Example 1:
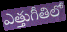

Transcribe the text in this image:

ఎత్తుగీతిలో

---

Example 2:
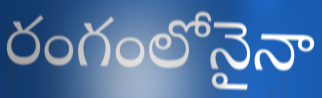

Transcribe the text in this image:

రంగంలోనైనా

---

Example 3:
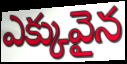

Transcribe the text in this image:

ఎక్కువైన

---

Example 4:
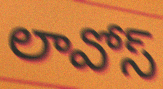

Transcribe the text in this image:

లావోస్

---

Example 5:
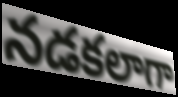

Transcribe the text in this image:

నడకలాగా